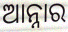
ଆନ୍ନାର